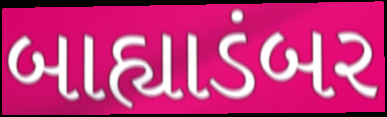
બાહ્યાડંબર